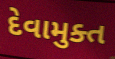
દેવામુક્ત